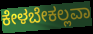
ಕೇಳಬೇಕಲ್ಲವಾ